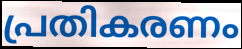
പ്രതികരണം